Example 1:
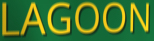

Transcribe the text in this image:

LAGOON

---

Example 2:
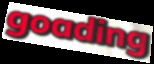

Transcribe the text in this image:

goading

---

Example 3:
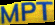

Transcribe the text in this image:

MPT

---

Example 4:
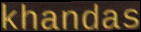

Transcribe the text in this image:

khandas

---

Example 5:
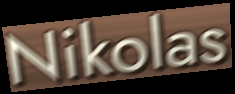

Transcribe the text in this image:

Nikolas